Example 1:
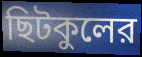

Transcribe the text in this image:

ছিটকুলের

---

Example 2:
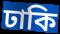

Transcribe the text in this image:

ঢাকি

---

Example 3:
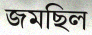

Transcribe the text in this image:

জমছিল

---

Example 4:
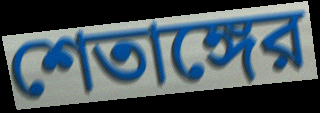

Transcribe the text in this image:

শেতাঙ্গের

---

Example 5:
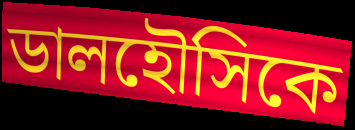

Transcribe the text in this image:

ডালহৌসিকে